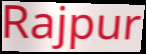
Rajpur